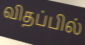
விதப்பில்